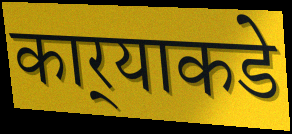
कार्याकडे